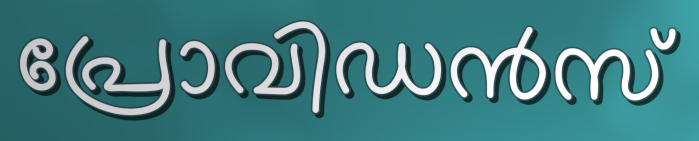
പ്രോവിഡൻസ്